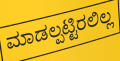
ಮಾಡಲ್ಪಟ್ಟಿರಲಿಲ್ಲ